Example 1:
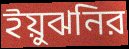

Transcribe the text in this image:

ইয়ুঝনির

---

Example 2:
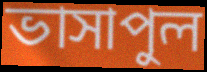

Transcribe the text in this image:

ভাসাপুল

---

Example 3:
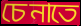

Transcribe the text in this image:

চেনাতে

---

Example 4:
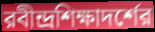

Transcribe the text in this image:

রবীন্দ্রশিক্ষাদর্শের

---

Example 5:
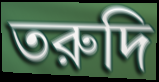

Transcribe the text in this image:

তরুদি